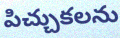
పిచ్చుకలను